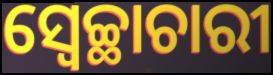
ସ୍ୱେଚ୍ଛାଚାରୀ